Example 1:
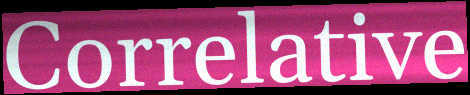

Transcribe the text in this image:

Correlative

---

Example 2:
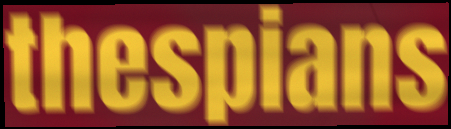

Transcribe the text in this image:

thespians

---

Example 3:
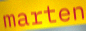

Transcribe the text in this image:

marten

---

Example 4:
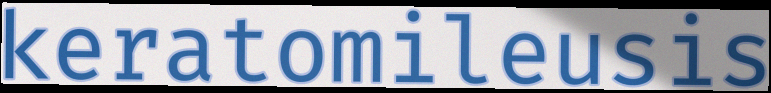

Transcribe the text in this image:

keratomileusis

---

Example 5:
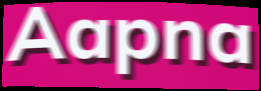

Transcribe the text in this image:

Aapna